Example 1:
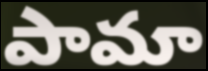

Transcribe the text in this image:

పామా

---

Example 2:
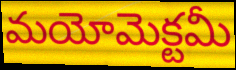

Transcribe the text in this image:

మయోమెక్టమీ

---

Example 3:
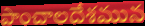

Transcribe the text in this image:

పాంచాలదేశమున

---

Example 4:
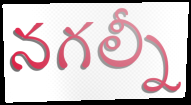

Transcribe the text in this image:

నగల్నీ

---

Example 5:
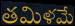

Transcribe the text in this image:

తమిళమే